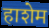
हाशेम